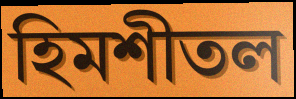
হিমশীতল